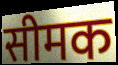
सीमक